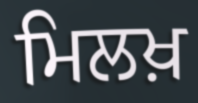
ਮਿਲਖ਼